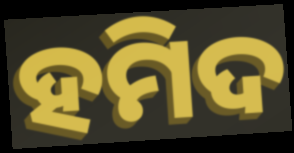
ହମିଦ